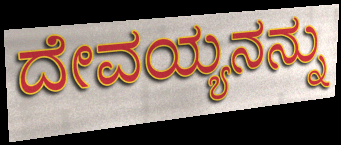
ದೇವಯ್ಯನನ್ನು